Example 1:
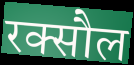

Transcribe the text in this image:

रक्सौल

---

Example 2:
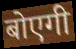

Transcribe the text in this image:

बोएगी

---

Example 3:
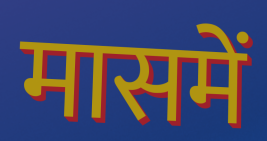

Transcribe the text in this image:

मासमें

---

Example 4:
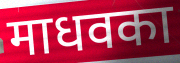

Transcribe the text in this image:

माधवका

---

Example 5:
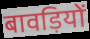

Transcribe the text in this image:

बावड़ियों